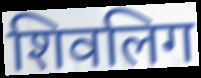
शिवलिग